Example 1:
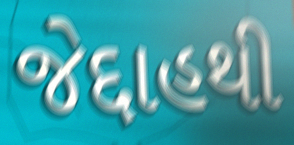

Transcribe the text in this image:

જેદ્દાહથી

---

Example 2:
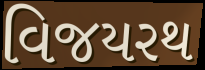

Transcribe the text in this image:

વિજયરથ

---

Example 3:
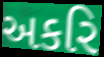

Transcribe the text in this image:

અકરિ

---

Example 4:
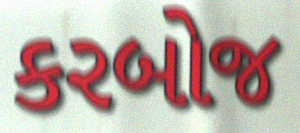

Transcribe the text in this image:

કરબોજ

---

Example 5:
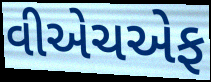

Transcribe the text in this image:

વીએચએફ